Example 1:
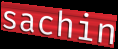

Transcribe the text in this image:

sachin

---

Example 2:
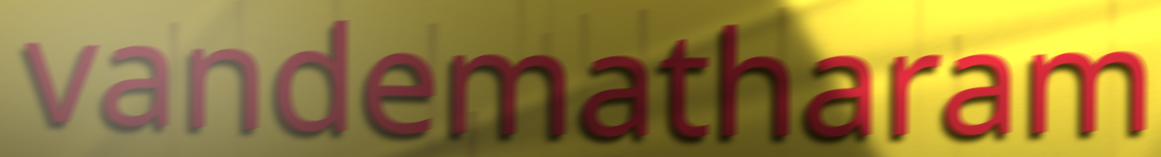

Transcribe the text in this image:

vandematharam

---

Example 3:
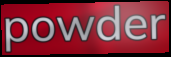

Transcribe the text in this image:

powder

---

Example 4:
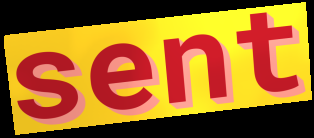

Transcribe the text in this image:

sent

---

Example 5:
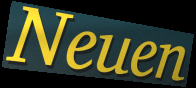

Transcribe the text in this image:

Neuen